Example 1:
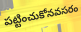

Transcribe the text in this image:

పట్టించుకోనవసరం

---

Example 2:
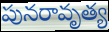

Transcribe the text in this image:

పునరావృత్య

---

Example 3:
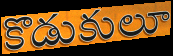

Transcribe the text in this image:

కొడుకులూ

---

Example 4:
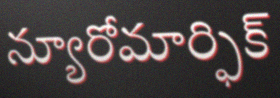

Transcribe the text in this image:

న్యూరోమార్ఫిక్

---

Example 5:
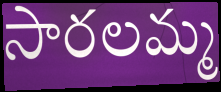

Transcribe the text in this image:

సారలమ్మ